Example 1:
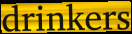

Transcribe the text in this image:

drinkers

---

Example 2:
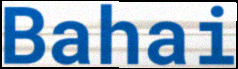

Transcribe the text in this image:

Bahai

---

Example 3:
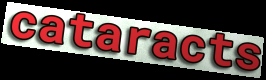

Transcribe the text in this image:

cataracts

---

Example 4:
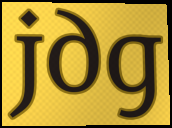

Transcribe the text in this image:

jdg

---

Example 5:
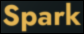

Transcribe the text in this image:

Spark